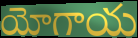
యోగాయ